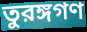
তুরঙ্গগণ